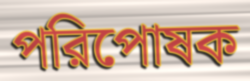
পরিপোষক